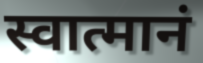
स्वात्मानं